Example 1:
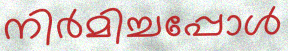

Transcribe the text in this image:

നിർമിച്ചപ്പോൾ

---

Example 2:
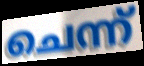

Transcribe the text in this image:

ചെന്ന്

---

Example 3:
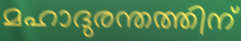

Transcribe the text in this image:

മഹാദുരന്തത്തിന്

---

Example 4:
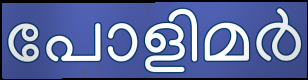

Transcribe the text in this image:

പോളിമർ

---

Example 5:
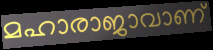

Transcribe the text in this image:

മഹാരാജാവാണ്